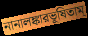
নানালঙ্কারভূষিতাম্